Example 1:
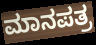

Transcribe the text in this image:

ಮಾನಪತ್ರ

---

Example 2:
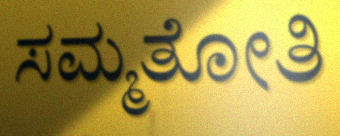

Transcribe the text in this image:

ಸಮ್ಮತೋತಿ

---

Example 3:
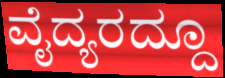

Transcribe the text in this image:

ವೈದ್ಯರದ್ದೂ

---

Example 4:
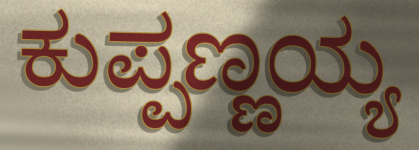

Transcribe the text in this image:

ಕುಪ್ಪಣ್ಣಯ್ಯ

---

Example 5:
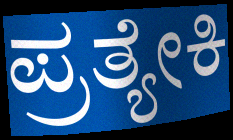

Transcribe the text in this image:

ಪ್ರತ್ಯೇಕಿ